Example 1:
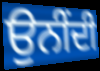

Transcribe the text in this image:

ਉਨੀਂਦੀ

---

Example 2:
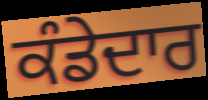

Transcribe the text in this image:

ਕੰਡੇਦਾਰ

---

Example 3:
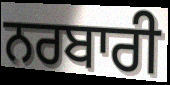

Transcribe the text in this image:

ਨਰਬਾਰੀ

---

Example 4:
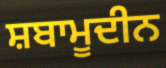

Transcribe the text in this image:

ਸ਼ਬਾਮੂਦੀਨ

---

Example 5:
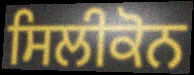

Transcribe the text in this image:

ਸਿਲੀਕੋਨ